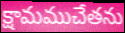
క్షామముచేతను